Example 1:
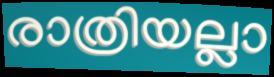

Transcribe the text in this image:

രാത്രിയല്ലാ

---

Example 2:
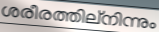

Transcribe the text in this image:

ശരീരത്തില്നിന്നും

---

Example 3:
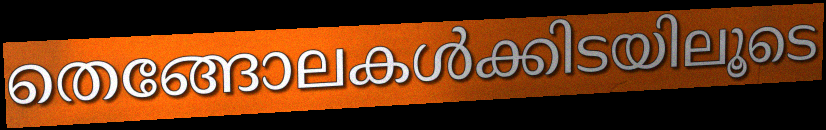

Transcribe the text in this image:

തെങ്ങോലകൾക്കിടയിലൂടെ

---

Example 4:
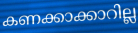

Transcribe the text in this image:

കണക്കാക്കാറില്ല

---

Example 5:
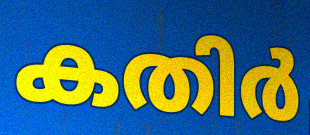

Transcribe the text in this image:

കതിർ